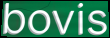
bovis